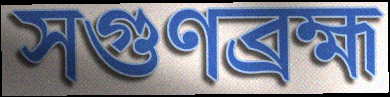
সগুণব্রহ্ম